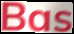
Bas